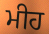
ਮੀਹ